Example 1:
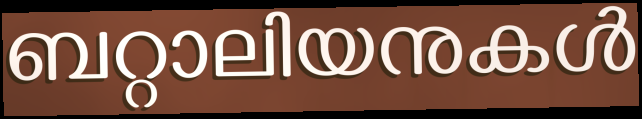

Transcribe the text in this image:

ബറ്റാലിയനുകൾ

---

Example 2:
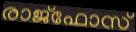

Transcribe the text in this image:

രാജ്ഫോസ്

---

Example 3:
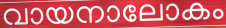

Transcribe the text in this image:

വായനാലോകം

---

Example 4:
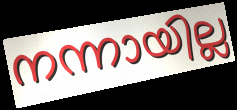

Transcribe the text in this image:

നന്നായില്ല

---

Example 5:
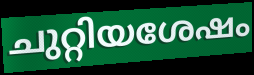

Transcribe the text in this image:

ചുറ്റിയശേഷം